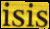
isis